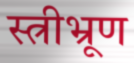
स्त्रीभ्रूण